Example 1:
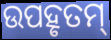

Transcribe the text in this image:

ଉପହୃତମ୍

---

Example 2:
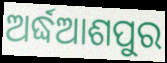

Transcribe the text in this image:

ଅର୍ଦ୍ଧଆଶପୁର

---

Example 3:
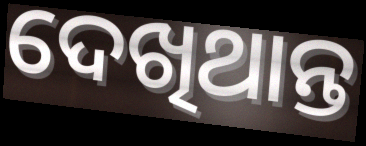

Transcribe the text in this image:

ଦେଖିଥାନ୍ତ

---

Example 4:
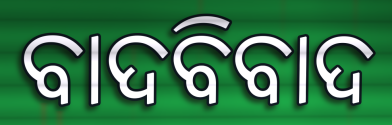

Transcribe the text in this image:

ବାଦବିବାଦ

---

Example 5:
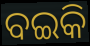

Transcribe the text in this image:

ବଇକି